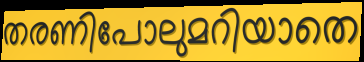
തരണിപോലുമറിയാതെ